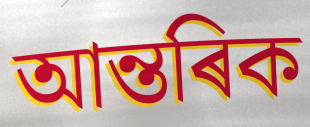
আন্তৰিক